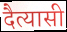
दैत्यासी